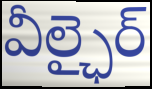
వీల్ఛైర్